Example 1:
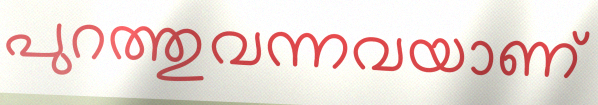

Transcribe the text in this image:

പുറത്തുവന്നവയാണ്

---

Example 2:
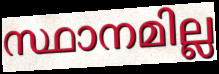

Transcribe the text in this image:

സ്ഥാനമില്ല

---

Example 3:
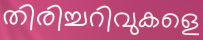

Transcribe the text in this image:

തിരിച്ചറിവുകളെ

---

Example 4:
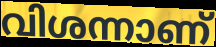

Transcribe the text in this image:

വിശന്നാണ്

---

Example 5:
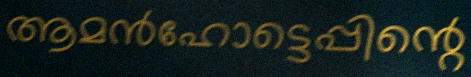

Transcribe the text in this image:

ആമൻഹോട്ടെപ്പിന്റെ